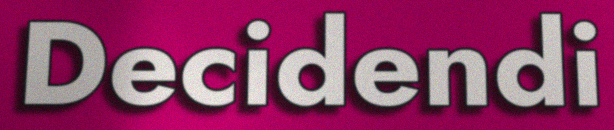
Decidendi